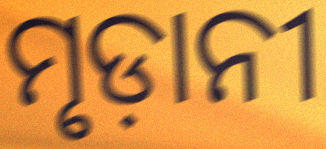
ମୃଡ଼ାନୀ